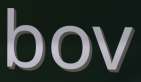
bov